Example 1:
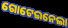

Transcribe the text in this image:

ଗୋଟେଇନେଲା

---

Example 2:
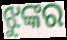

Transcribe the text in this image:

ଝୁଙ୍କର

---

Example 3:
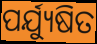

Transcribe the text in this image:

ପର୍ଯ୍ୟୁଷିତ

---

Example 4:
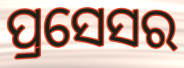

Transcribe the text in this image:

ପ୍ରସେସର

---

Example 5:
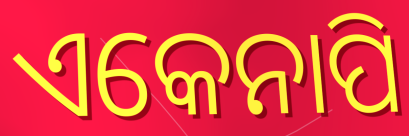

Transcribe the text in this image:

ଏକେନାପି